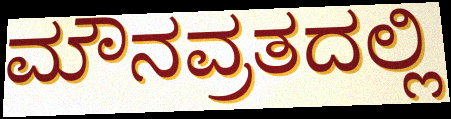
ಮೌನವ್ರತದಲ್ಲಿ